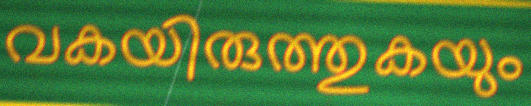
വകയിരുത്തുകയും